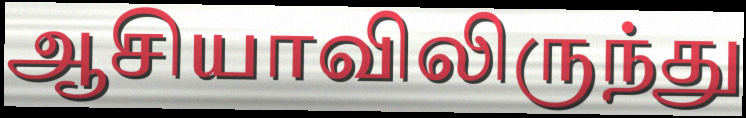
ஆசியாவிலிருந்து